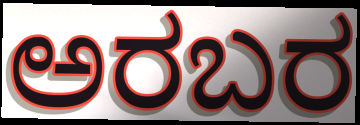
ಅರಬರ